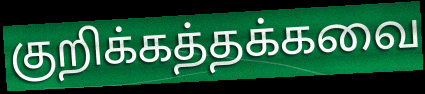
குறிக்கத்தக்கவை